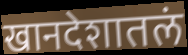
खानदेशातलं